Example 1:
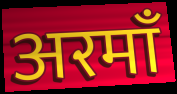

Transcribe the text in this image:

अरमाँ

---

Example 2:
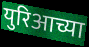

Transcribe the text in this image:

युरिआच्या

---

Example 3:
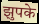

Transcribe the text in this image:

झुपके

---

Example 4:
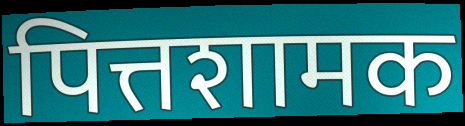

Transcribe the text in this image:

पित्तशामक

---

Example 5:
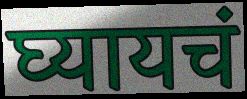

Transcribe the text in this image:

घ्यायचं